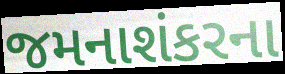
જમનાશંકરના